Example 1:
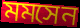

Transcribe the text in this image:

মমসেন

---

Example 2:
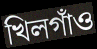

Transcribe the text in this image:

খিলগাঁও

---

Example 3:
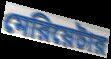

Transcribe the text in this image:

মেরিয়েটার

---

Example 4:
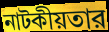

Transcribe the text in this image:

নাটকীয়তার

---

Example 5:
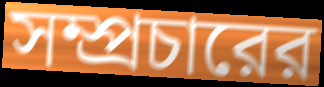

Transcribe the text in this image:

সম্প্রচারের